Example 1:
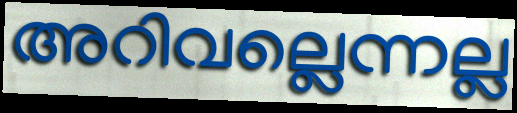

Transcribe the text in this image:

അറിവല്ലെന്നല്ല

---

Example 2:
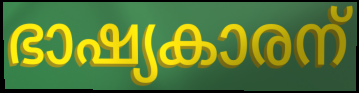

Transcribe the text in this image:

ഭാഷ്യകാരന്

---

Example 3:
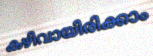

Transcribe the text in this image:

കഴിവായിരിക്കാം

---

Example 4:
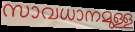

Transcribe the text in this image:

സാവധാനമുള്ള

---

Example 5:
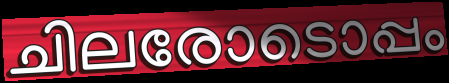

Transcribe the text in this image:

ചിലരോടൊപ്പം